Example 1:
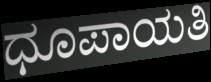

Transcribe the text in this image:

ಧೂಪಾಯತಿ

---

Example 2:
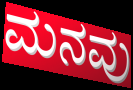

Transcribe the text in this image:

ಮನವು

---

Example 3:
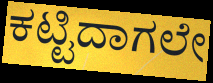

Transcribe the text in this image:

ಕಟ್ಟಿದಾಗಲೇ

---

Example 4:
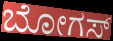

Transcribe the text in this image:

ಬೋಗಸ್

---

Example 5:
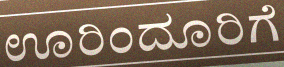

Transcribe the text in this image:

ಊರಿಂದೂರಿಗೆ